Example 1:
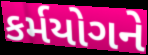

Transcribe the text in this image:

કર્મયોગને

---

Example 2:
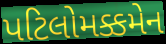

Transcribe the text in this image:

પટિલોમક્કમેન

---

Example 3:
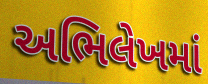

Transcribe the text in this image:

અભિલેખમાં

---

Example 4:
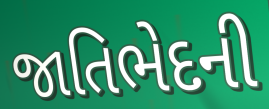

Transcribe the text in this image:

જાતિભેદની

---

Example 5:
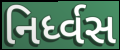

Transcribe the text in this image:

નિર્ધ્વસ